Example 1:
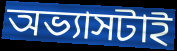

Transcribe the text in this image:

অভ্যাসটাই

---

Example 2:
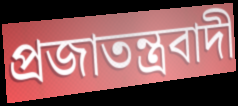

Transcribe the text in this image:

প্রজাতন্ত্রবাদী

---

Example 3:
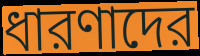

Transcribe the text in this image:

ধারণাদের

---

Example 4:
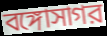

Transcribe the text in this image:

বঙ্গোসাগর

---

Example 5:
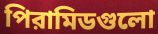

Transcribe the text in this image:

পিরামিডগুলো